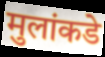
मुलांकडे